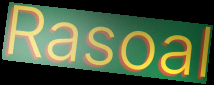
Rasoal